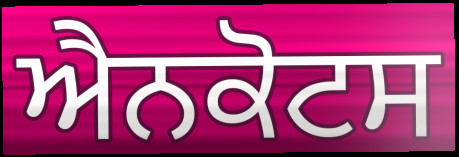
ਐਨਕੋਟਸ